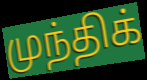
முந்திக்